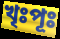
খৃঃপূঃ